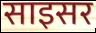
साइसर